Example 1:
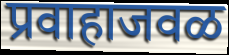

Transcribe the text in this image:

प्रवाहाजवळ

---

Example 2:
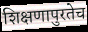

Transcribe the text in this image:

शिक्षणापुरतेच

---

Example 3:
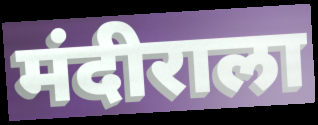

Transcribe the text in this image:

मंदीराला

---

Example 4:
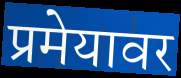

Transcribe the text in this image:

प्रमेयावर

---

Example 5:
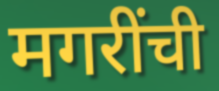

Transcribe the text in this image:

मगरींची